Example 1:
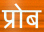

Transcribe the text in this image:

प्रोब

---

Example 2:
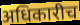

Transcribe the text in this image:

अधिकारीच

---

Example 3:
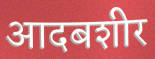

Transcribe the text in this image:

आदबशीर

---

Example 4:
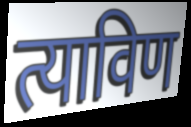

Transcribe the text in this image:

त्याविण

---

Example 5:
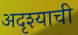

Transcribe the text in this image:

अदृश्याची